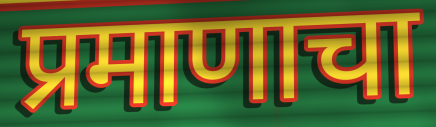
प्रमाणाचा